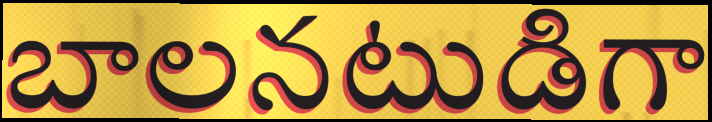
బాలనటుడిగా